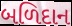
બળિદાન